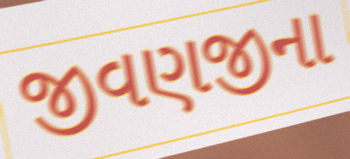
જીવણજીના